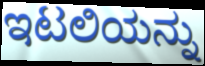
ಇಟಲಿಯನ್ನು